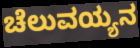
ಚೆಲುವಯ್ಯನ